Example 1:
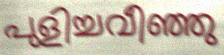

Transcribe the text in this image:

പുളിച്ചവീഞ്ഞു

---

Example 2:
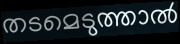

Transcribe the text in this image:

തടമെടുത്താൽ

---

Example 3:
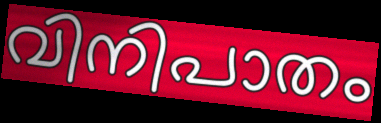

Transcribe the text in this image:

വിനിപാതം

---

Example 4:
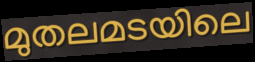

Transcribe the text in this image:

മുതലമടയിലെ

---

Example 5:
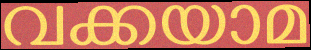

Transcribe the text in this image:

വക്കയാമ